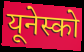
यूनेस्को